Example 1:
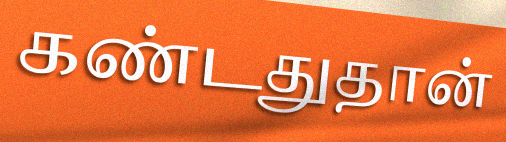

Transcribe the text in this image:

கண்டதுதான்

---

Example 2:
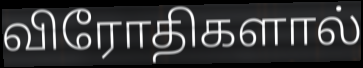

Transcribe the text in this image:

விரோதிகளால்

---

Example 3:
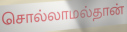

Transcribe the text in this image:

சொல்லாமல்தான்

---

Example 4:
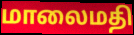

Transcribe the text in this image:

மாலைமதி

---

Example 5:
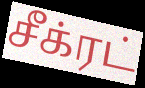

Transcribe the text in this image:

சீக்ரட்